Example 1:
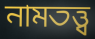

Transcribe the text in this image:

নামতত্ত্ব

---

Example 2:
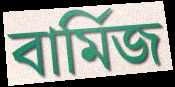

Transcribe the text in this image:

বার্মিজ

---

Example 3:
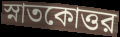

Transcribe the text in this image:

স্নাতকোত্তর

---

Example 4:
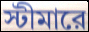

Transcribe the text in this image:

স্টীমারে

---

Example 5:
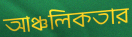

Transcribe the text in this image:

আঞ্চলিকতার